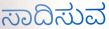
ಸಾದಿಸುವ